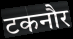
टकनौर